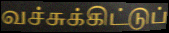
வச்சுக்கிட்டுப்